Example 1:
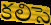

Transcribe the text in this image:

కలిసె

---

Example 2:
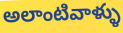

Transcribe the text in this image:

అలాంటివాళ్ళు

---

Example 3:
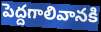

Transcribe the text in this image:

పెద్దగాలివానకి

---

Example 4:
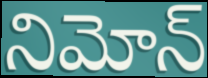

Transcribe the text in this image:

నిమోన్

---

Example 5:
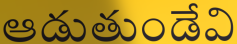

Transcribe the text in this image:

ఆడుతుండేవి